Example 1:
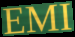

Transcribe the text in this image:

EMI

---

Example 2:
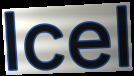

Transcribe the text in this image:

Icel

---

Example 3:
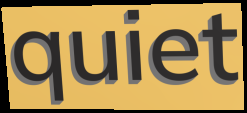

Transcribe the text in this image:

quiet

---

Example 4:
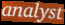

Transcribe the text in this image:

analyst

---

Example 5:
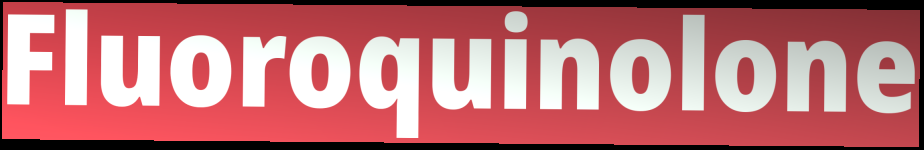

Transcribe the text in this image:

Fluoroquinolone